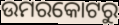
ଉମରକୋଟରୁ